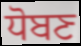
ਧੋਬਣ